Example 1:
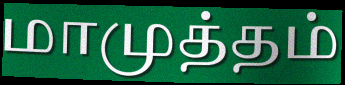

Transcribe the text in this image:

மாமுத்தம்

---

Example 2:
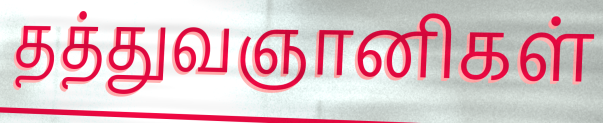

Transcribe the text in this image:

தத்துவஞானிகள்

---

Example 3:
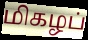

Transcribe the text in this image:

மிகழப்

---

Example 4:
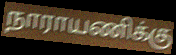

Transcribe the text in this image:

நாராயணிக்கு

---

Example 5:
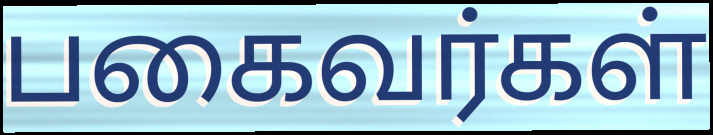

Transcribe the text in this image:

பகைவர்கள்